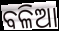
ବଳିଆ